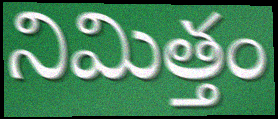
నిమిత్తం